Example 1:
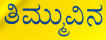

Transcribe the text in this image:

ತಿಮ್ಮುವಿನ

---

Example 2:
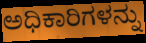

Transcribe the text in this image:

ಅಧಿಕಾರಿಗಳನ್ನು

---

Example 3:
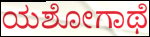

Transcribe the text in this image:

ಯಶೋಗಾಥೆ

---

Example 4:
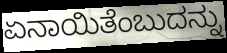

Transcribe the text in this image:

ಏನಾಯಿತೆಂಬುದನ್ನು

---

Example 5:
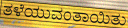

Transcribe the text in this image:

ತಳೆಯುವಂತಾಯಿತು